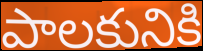
పాలకునికి